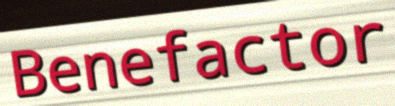
Benefactor